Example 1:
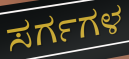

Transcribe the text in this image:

ಸರ್ಗಗಳ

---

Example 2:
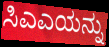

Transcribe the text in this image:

ಸಿಎಎಯನ್ನು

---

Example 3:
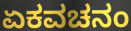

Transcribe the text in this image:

ಏಕವಚನಂ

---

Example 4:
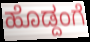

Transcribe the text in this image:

ಹೊಡ್ದಂಗೆ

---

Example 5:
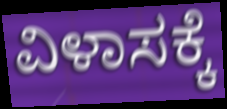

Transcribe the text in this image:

ವಿಳಾಸಕ್ಕೆ